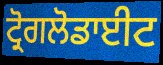
ਟ੍ਰੋਗਲੋਡਾਈਟ